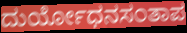
ದುರ್ಯೋಧನಸಂತಾಪ